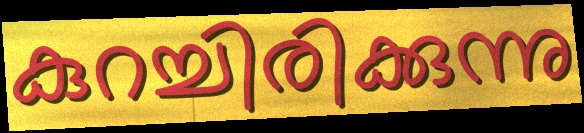
കുറച്ചിരിക്കുന്നു